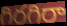
గిరగిరా